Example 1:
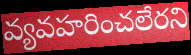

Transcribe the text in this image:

వ్యవహరించలేరని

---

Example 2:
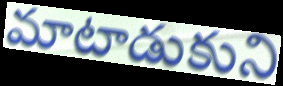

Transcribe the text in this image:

మాటాడుకుని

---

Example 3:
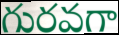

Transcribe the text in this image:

గురవగా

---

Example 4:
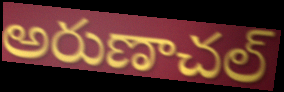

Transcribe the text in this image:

అరుణాచల్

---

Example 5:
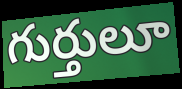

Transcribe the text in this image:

గుర్తులూ